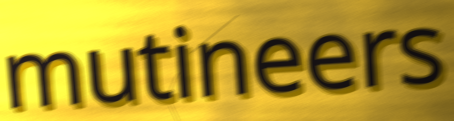
mutineers